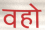
वहो